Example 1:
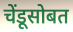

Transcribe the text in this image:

चेंडूसोबत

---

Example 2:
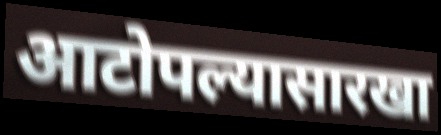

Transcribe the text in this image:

आटोपल्यासारखा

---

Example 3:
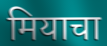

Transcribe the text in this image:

मियाचा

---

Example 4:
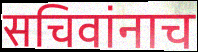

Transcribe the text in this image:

सचिवांनाच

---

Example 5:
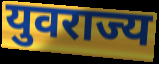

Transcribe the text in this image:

युवराज्य